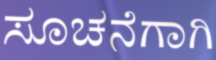
ಸೂಚನೆಗಾಗಿ